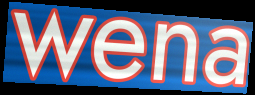
wena